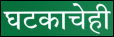
घटकाचेही